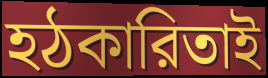
হঠকারিতাই